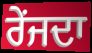
ਰੇਂਜਦਾ